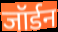
जॉर्डन